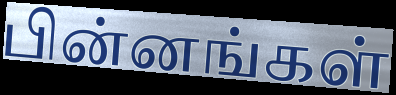
பின்னங்கள்